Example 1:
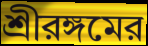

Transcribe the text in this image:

শ্রীরঙ্গমের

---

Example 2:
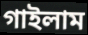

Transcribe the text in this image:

গাইলাম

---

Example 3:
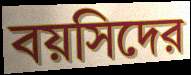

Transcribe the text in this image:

বয়সিদের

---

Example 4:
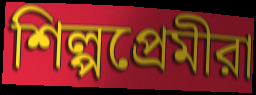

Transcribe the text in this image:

শিল্পপ্রেমীরা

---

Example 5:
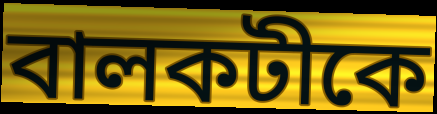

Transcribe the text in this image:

বালকটীকে